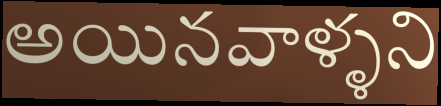
అయినవాళ్ళని